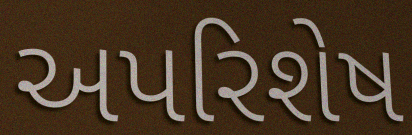
અપરિશેષ